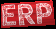
ERP